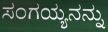
ಸಂಗಯ್ಯನನ್ನು